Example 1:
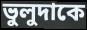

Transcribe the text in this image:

ভুলুদাকে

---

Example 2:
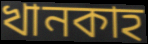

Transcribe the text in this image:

খানকাহ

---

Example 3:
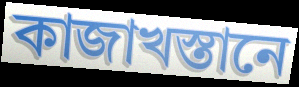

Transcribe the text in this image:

কাজাখস্তানে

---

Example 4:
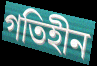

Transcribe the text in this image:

গতিহীন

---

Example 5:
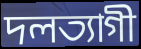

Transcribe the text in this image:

দলত্যাগী